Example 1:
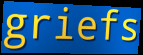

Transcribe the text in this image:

griefs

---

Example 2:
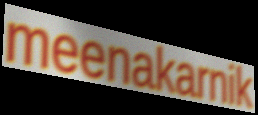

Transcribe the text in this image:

meenakarnik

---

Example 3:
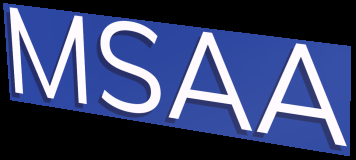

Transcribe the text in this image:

MSAA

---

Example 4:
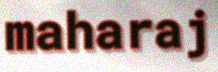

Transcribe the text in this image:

maharaj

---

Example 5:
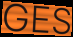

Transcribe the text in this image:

GES